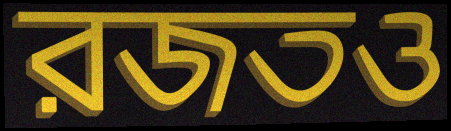
রজতও